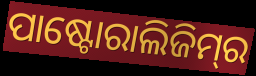
ପାଷ୍ଟୋରାଲିଜିମ୍‌ର